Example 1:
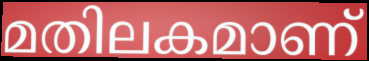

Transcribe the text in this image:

മതിലകമാണ്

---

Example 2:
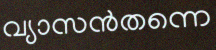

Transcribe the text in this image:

വ്യാസൻതന്നെ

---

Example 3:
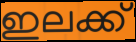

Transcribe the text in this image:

ഇലക്ക്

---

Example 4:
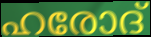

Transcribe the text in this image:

ഹരോദ്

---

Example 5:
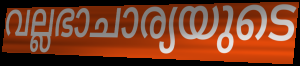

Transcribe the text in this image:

വല്ലഭാചാര്യയുടെ